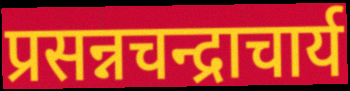
प्रसन्नचन्द्राचार्य